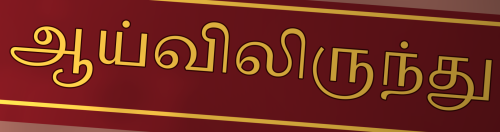
ஆய்விலிருந்து